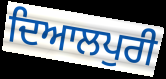
ਦਿਆਲਪੁਰੀ